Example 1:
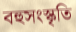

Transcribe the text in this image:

বহুসংস্কৃতি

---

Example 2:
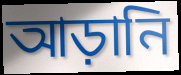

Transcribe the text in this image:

আড়ানি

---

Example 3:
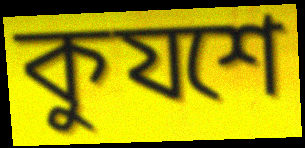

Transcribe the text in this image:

কুযশে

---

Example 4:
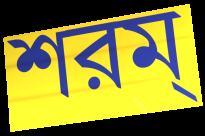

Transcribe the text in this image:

শরম্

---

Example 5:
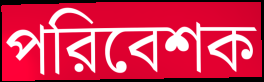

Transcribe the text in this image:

পরিবেশক